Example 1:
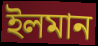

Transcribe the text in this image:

ইলমান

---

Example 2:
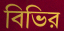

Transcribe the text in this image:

বিভির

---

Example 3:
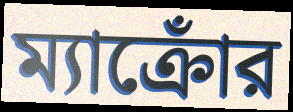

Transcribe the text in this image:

ম্যাক্রোঁর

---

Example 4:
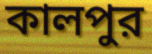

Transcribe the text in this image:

কালপুর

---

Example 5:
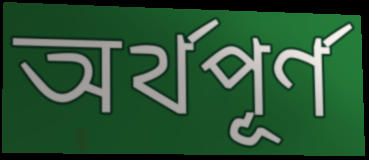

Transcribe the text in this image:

অর্থপূর্ণ